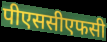
पीएससीएफसी